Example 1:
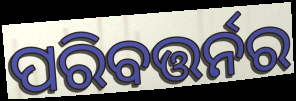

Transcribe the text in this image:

ପରିବତ୍ତର୍ନର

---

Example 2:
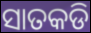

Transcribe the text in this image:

ସାତକଡି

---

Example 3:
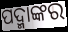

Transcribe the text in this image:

ପଦ୍ମାଙ୍କର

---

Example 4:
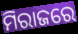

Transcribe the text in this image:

ମିରାଜରେ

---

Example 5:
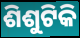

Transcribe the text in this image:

ଶିଶୁଟିକି